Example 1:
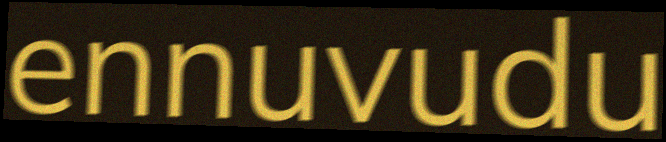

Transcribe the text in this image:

ennuvudu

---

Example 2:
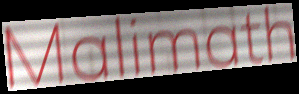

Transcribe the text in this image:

Malimath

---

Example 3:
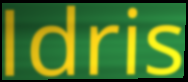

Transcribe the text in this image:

Idris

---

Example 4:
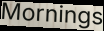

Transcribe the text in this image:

Mornings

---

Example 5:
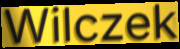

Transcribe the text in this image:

Wilczek